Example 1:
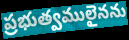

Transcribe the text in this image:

ప్రభుత్వములైనను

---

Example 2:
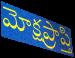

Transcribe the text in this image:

మోక్షప్రాప్తి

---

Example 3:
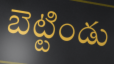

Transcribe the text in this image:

బెట్టిండు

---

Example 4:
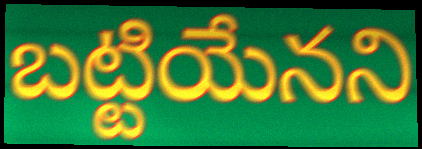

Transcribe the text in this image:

బట్టియేనని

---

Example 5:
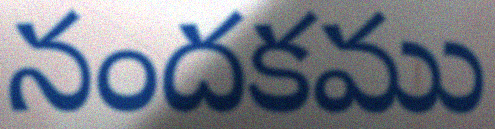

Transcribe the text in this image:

నందకము